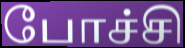
போச்சி